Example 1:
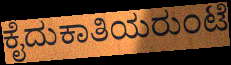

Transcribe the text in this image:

ಕೈದುಕಾತಿಯರುಂಟೆ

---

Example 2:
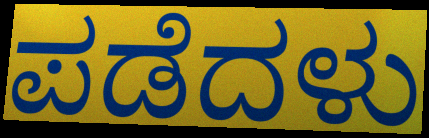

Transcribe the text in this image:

ಪಡೆದಳು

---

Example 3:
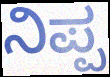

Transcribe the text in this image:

ನಿಪ್ಪ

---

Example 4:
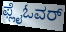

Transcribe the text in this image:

ಫ್ಲೈಓವರ್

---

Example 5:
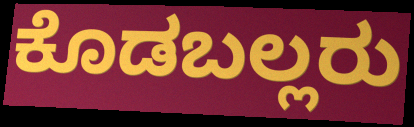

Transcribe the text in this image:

ಕೊಡಬಲ್ಲರು